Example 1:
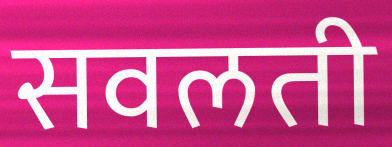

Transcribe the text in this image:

सवलती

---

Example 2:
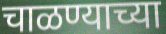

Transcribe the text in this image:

चाळण्याच्या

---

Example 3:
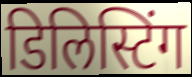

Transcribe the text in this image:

डिलिस्टिंग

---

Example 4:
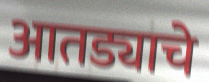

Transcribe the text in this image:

आतड्याचे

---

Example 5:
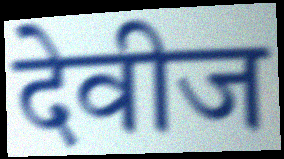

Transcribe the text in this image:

देवीज